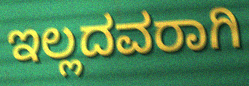
ಇಲ್ಲದವರಾಗಿ